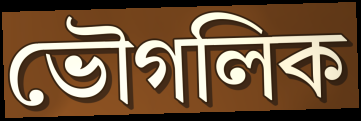
ভৌগলিক